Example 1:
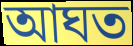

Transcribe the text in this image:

আঘত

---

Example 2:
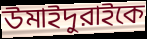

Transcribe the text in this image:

উমাইদুরাইকে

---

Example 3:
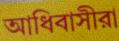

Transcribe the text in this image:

আধিবাসীরা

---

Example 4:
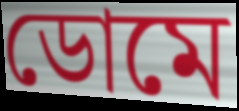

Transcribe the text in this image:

ডোমে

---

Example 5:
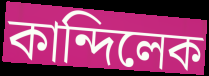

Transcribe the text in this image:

কান্দিলেক